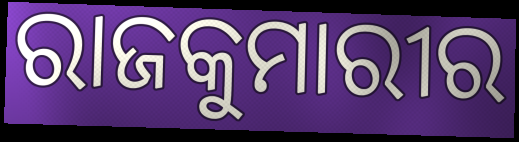
ରାଜକୁମାରୀର